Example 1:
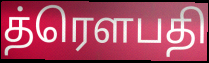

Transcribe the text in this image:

த்ரௌபதி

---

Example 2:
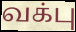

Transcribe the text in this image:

வக்பு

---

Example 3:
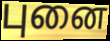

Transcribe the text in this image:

புனை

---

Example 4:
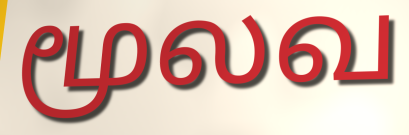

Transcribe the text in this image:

மூலவ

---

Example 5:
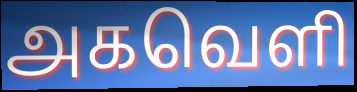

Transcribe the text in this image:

அகவெளி